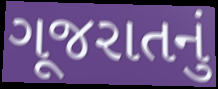
ગૂજરાતનું